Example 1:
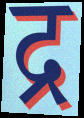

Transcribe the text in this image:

द्र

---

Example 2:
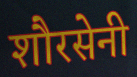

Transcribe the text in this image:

शौरसेनी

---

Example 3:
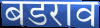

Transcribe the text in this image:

बडराव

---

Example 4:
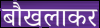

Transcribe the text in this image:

बौखलाकर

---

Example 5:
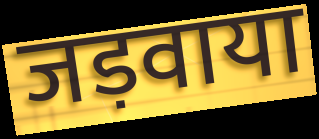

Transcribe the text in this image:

जड़वाया